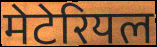
मेटेरियल